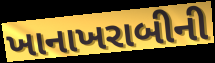
ખાનાખરાબીની